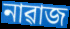
নাৱাজ